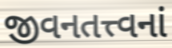
જીવનતત્ત્વનાં